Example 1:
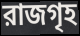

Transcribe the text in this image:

রাজগৃহ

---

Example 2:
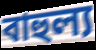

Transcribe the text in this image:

বাহুল্য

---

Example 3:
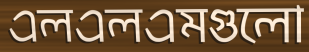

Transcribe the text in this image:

এলএলএমগুলো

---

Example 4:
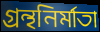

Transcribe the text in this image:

গ্রন্থনির্মাতা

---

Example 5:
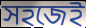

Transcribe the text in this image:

সহজেই